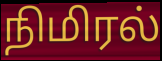
நிமிரல்